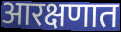
आरक्षणात